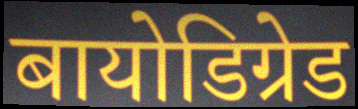
बायोडिग्रेड